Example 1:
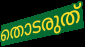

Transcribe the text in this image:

തൊടരുത്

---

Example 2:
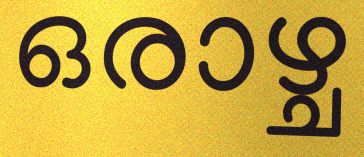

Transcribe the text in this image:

ഒരാഴ്ച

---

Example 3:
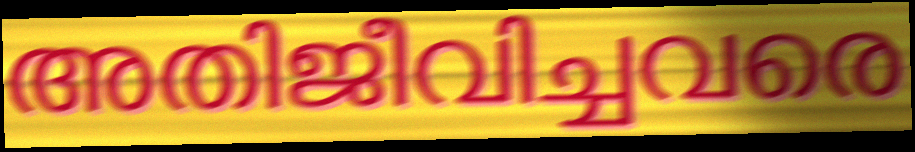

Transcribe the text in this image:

അതിജീവിച്ചവരെ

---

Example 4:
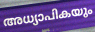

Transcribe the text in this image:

അധ്യാപികയും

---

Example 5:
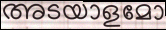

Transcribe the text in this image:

അടയാളമോ